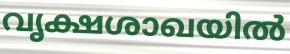
വൃക്ഷശാഖയിൽ